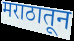
मराठातून